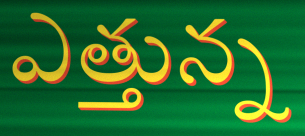
ఎత్తున్న